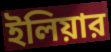
ইলিয়ার